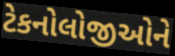
ટેકનોલોજીઓને